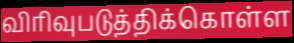
விரிவுபடுத்திக்கொள்ள